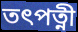
তৎপত্নী